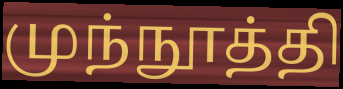
முந்நூத்தி